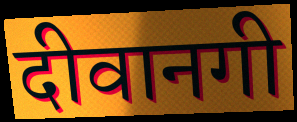
दीवानगी